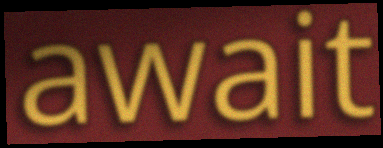
await